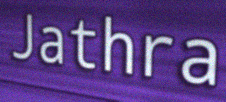
Jathra